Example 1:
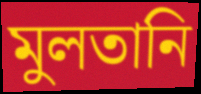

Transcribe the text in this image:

মুলতানি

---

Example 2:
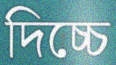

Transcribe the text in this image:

দিচ্চে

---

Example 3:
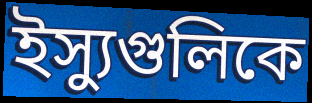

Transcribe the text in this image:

ইস্যুগুলিকে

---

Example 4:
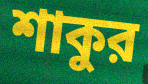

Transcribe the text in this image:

শাকুর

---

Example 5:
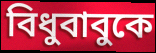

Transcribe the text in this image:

বিধুবাবুকে